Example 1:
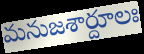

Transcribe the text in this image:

మనుజశార్దూలః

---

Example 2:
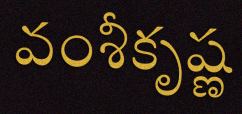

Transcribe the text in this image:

వంశీకృష్ణ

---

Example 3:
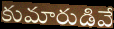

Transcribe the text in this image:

కుమారుడివే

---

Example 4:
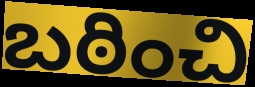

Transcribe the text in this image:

బఠించి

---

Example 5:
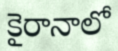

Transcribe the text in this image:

కైరానాలో